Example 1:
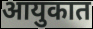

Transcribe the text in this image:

आयुकात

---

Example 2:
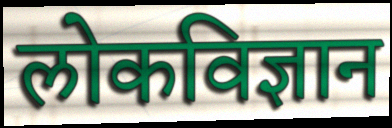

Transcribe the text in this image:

लोकविज्ञान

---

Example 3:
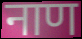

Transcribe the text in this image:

नाण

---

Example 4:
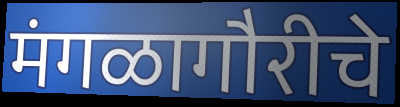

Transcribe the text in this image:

मंगळागौरीचे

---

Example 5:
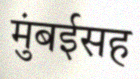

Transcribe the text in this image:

मुंबईसह